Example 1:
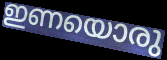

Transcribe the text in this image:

ഇണയൊരു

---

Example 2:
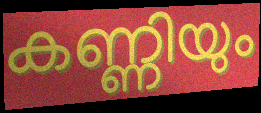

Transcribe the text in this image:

കണ്ണിയും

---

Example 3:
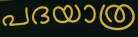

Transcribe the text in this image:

പദയാത്ര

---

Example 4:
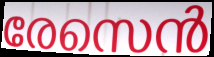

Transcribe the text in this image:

രേസെൻ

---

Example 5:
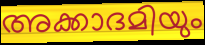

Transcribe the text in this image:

അക്കാദമിയും